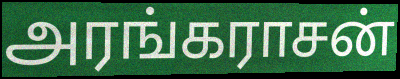
அரங்கராசன்